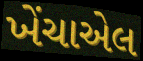
ખેંચાએલ